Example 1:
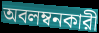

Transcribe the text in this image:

অবলম্বনকারী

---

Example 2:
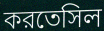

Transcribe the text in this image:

করতেসিল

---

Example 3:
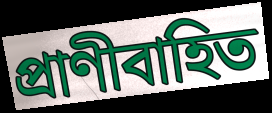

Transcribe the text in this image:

প্রাণীবাহিত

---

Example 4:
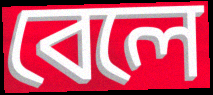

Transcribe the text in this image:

বেলে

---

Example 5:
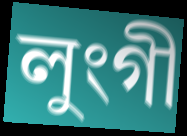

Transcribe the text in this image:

লুংগী